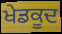
ਖੇਡਕੂਦ